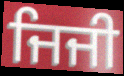
ਜਿਜੀ